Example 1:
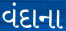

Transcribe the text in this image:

વંદાના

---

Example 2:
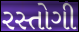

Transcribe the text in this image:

રસ્તોગી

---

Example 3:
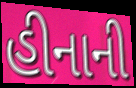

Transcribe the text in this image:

હીનાની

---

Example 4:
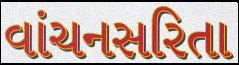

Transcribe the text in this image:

વાંચનસરિતા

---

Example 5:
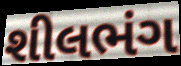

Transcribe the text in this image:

શીલભંગ